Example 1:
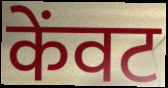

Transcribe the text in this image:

केंवट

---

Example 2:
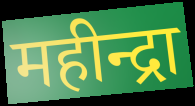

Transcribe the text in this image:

महीन्द्रा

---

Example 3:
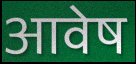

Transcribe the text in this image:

आवेष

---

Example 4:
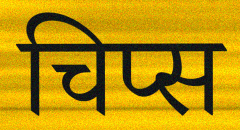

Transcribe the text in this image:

चिप्स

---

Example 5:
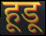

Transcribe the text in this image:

हूडू